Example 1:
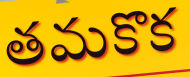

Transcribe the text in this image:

తమకొక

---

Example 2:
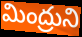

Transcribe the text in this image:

మింద్రుని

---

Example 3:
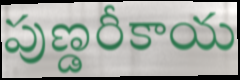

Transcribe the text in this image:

పుణ్డరీకాయ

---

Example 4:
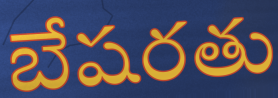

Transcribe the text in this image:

బేషరతు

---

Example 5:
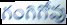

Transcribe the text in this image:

గంగిగోవు